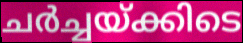
ചർച്ചയ്ക്കിടെ